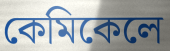
কেমিকেলে